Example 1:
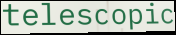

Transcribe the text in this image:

telescopic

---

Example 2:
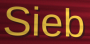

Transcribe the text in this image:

Sieb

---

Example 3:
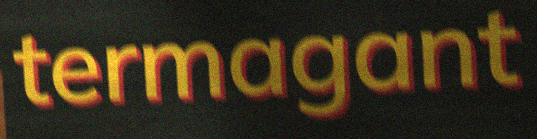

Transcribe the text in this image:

termagant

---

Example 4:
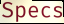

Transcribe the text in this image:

Specs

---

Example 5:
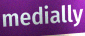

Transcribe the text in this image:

medially